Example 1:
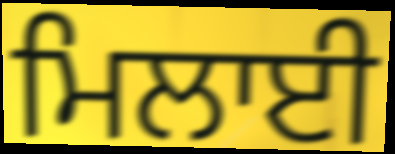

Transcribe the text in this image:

ਮਿਲਾਈ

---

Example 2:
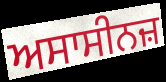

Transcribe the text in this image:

ਅਸਾਸੀਨਜ਼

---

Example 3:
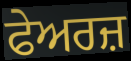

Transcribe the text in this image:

ਫੇਅਰਜ਼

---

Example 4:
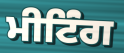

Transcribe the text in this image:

ਮੀਟਿਂੰਗ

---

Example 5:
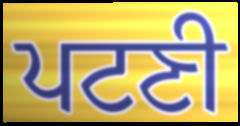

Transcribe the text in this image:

ਪਟਣੀ